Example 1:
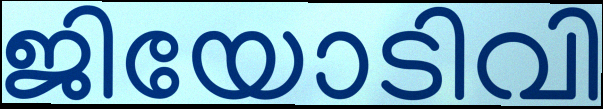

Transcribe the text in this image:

ജിയോടിവി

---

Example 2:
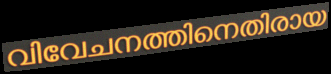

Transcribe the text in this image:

വിവേചനത്തിനെതിരായ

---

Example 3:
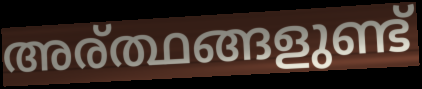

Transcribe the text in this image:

അര്ത്ഥങ്ങളുണ്ട്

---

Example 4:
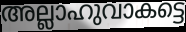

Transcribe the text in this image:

അല്ലാഹുവാകട്ടെ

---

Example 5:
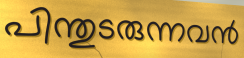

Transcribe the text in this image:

പിന്തുടരുന്നവൻ